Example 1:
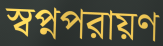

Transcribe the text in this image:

স্বপ্নপরায়ণ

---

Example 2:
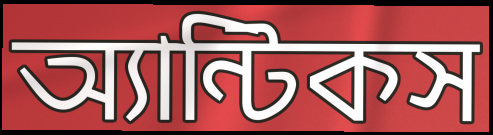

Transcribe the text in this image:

অ্যান্টিকস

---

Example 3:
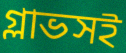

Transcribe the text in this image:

গ্লাভসই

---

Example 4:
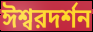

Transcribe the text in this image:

ঈশ্বরদর্শন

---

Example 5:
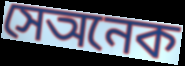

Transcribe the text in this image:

সেঅনেক